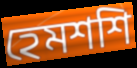
হেমশশি